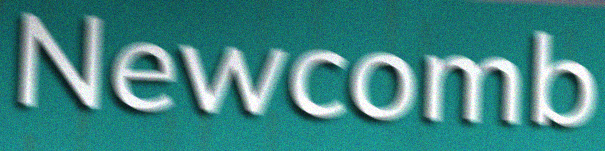
Newcomb